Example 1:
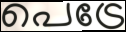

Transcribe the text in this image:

പെട്രേ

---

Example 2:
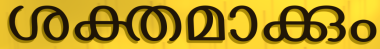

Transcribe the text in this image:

ശക്തമാക്കും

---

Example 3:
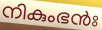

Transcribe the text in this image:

നികുംഭൻഃ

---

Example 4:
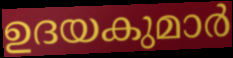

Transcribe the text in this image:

ഉദയകുമാർ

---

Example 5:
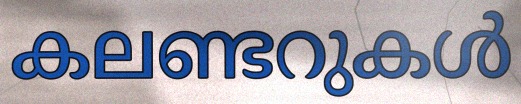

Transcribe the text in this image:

കലണ്ടറുകൾ